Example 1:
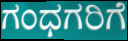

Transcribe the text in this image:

ಗಂಧಗರಿಗೆ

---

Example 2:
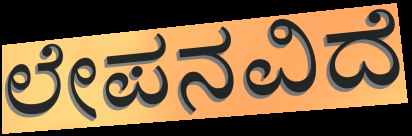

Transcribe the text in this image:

ಲೇಪನವಿದೆ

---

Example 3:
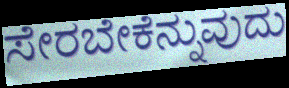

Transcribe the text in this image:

ಸೇರಬೇಕೆನ್ನುವುದು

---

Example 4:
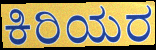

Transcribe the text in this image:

ಕಿರಿಯರ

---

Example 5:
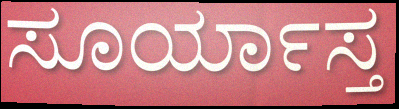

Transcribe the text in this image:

ಸೂರ್ಯಾಸ್ತ